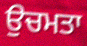
ਉਚਮਤਾ